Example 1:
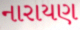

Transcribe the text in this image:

નારાયણ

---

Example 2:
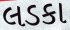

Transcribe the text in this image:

લડકા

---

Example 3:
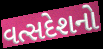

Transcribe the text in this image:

વત્સદેશનો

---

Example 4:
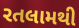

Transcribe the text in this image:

રતલામથી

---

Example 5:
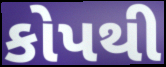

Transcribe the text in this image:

કોપથી